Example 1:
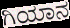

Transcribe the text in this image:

ಗಿಯಾನ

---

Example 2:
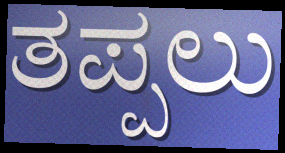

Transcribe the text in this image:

ತಪ್ಪಲು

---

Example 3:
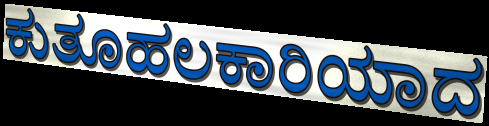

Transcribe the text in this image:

ಕುತೂಹಲಕಾರಿಯಾದ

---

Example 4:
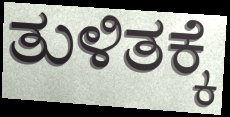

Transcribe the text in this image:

ತುಳಿತಕ್ಕೆ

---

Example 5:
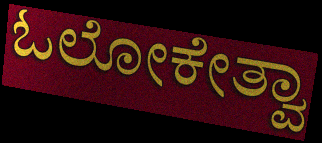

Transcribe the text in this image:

ಓಲೋಕೇತ್ವಾ